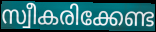
സ്വീകരിക്കേണ്ട